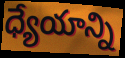
ధ్యేయాన్ని